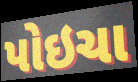
પોઇચા